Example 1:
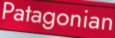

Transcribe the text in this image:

Patagonian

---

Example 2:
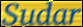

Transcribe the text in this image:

Sudar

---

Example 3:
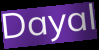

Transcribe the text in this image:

Dayal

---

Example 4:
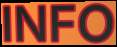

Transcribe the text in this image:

INFO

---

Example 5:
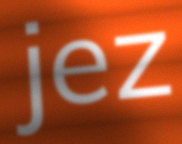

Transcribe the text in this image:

jez